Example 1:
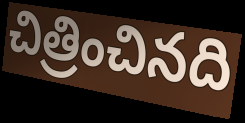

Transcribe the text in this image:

చిత్రించినది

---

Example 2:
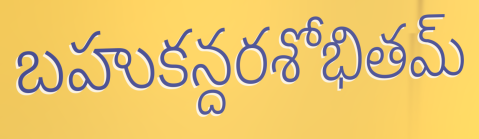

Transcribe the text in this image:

బహుకన్దరశోభితమ్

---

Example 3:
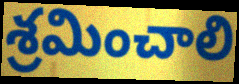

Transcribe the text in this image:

శ్రమించాలి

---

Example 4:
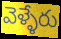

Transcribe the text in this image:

వెళ్ళేరు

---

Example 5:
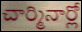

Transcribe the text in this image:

చార్మినార్లో